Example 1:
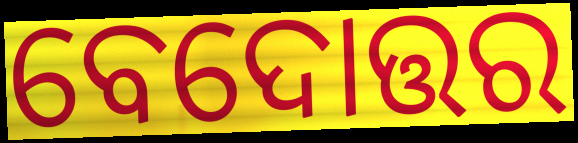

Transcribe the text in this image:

ବେଦୋତ୍ତର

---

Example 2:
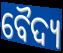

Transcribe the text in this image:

ବୈଦ୍ଯ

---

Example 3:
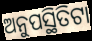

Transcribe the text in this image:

ଅନୁପସ୍ଥିତିଟା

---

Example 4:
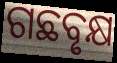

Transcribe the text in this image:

ଗଛବୃକ୍ଷ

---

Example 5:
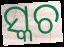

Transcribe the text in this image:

ସ୍କଚ